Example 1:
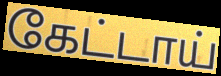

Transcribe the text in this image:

கேட்டாய்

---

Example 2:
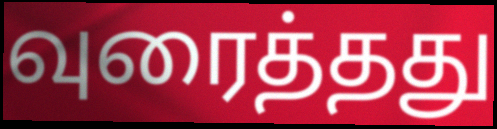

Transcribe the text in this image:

வுரைத்தது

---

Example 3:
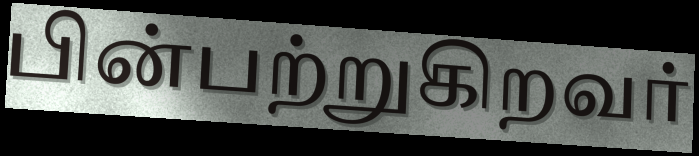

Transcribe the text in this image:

பின்பற்றுகிறவர்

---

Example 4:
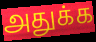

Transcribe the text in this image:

அதுக்க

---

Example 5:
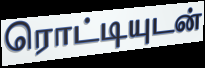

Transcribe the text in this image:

ரொட்டியுடன்